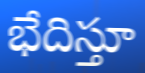
భేదిస్తూ